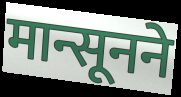
मान्सूनने